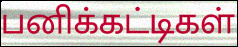
பனிக்கட்டிகள்